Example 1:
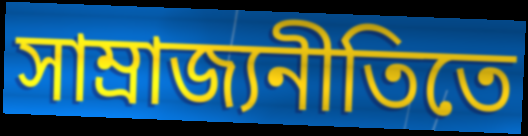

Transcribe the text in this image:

সাম্রাজ্যনীতিতে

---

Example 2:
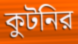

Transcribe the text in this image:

কুটনির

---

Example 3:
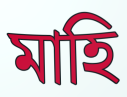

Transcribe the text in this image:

মাহি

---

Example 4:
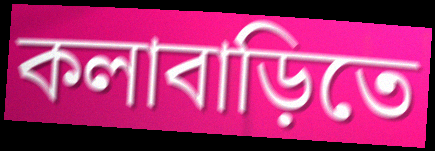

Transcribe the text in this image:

কলাবাড়িতে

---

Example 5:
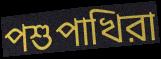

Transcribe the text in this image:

পশুপাখিরা